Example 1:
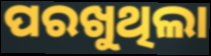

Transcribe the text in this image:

ପରଖୁଥିଲା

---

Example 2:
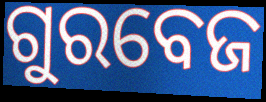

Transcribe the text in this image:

ଗୁରବେଜ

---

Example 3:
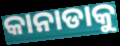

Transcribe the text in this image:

କାନାଡାକୁ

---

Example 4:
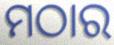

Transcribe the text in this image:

ମଠାର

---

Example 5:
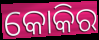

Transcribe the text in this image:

କୋକିର